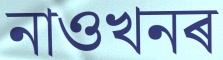
নাওখনৰ